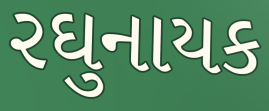
રઘુનાયક